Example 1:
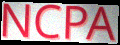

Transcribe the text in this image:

NCPA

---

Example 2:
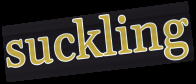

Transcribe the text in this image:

suckling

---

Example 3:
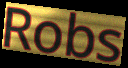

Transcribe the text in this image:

Robs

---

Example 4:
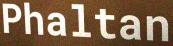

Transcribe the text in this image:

Phaltan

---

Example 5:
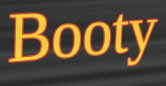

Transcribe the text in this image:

Booty